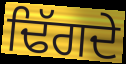
ਢਿੱਗਦੇ